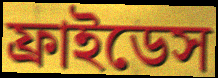
ফ্রাইডেস